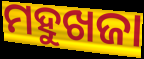
ମହୁଖଜା